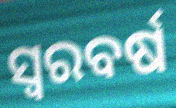
ସ୍ଵରବର୍ଷ